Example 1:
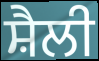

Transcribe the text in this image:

ਸ਼ੈਲੀ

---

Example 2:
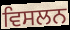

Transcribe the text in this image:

ਵਿਸਲਨ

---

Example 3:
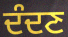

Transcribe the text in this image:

ਦੰਦਣ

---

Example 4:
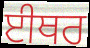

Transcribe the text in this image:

ਈਥਰ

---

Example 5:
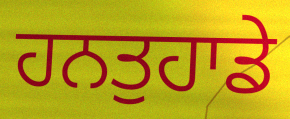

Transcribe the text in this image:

ਹਨਤੁਹਾਡੇ